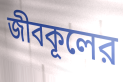
জীবকূলের